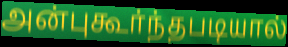
அன்புகூர்ந்தபடியால்